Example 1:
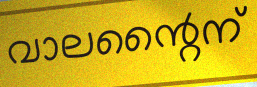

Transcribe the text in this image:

വാലന്റൈന്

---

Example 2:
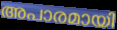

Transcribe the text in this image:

അപാരമായി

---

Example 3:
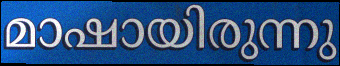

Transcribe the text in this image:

മാഷായിരുന്നു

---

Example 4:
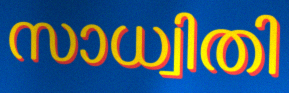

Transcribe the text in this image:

സാധ്വിതി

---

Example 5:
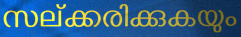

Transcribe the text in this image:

സല്ക്കരിക്കുകയും